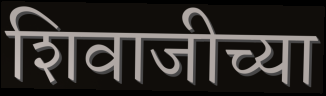
शिवाजीच्या